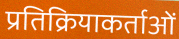
प्रतिक्रियाकर्ताओं